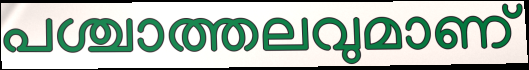
പശ്ചാത്തലവുമാണ്